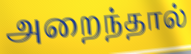
அறைந்தால்